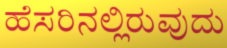
ಹೆಸರಿನಲ್ಲಿರುವುದು